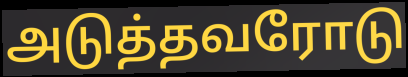
அடுத்தவரோடு